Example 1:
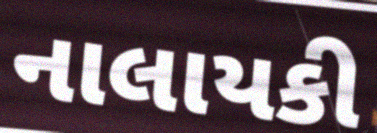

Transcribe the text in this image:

નાલાયકી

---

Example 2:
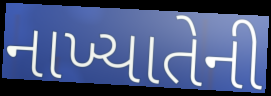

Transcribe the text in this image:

નાખ્યાતેની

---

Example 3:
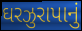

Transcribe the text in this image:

ઘરઝુરાપાનું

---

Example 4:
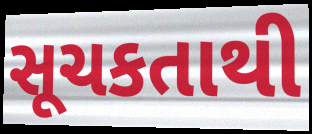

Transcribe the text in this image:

સૂચકતાથી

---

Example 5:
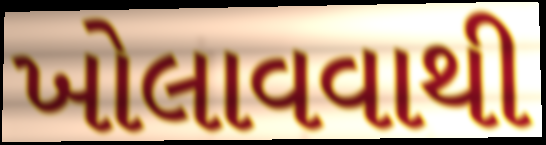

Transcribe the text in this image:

ખોલાવવાથી